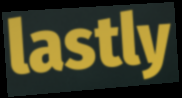
lastly